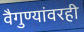
वैगुण्यांवरही